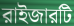
রাইজারটি